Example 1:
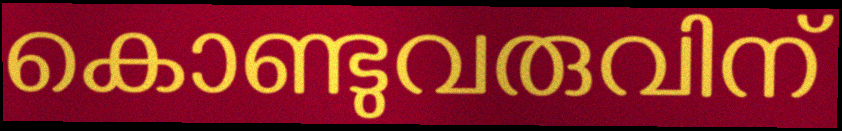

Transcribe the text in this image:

കൊണ്ടുവരുവിന്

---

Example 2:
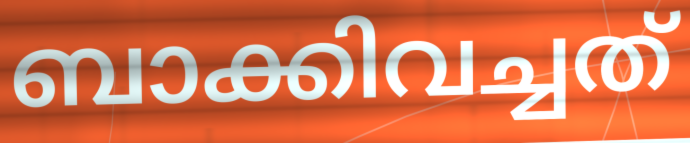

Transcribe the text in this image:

ബാക്കിവച്ചത്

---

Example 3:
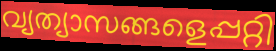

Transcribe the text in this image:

വ്യത്യാസങ്ങളെപ്പറ്റി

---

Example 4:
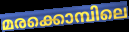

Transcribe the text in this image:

മരക്കൊമ്പിലെ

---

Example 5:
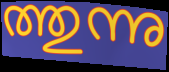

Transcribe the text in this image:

ത്തുന്നു